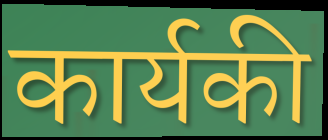
कार्यकी